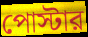
পোস্টার